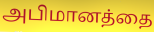
அபிமானத்தை